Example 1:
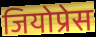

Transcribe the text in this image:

जियोप्रेस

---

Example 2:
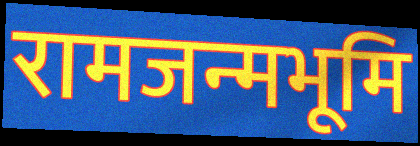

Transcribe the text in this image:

रामजन्मभूमि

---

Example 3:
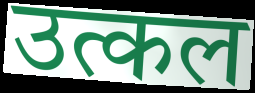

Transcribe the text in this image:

उत्कल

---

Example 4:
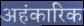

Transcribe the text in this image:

अहंकारिक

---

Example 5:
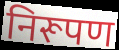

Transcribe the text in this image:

निरूपण